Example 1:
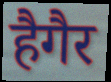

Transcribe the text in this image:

हैगैर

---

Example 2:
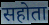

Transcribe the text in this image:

सहोता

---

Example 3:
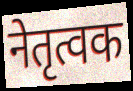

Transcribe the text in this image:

नेतृत्वक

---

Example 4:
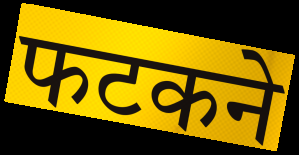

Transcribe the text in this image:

फटकने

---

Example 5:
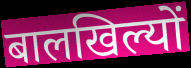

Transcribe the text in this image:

बालखिल्यों